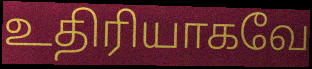
உதிரியாகவே